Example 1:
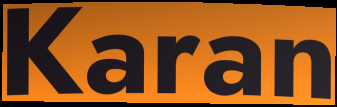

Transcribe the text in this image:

Karan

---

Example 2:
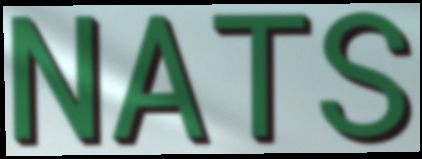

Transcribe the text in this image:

NATS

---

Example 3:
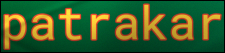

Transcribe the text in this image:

patrakar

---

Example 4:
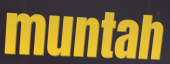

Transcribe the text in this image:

muntah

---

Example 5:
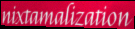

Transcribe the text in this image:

nixtamalization